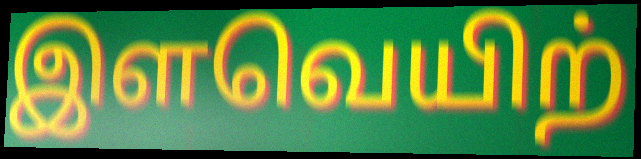
இளவெயிற்